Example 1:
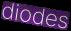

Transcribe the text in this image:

diodes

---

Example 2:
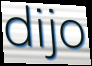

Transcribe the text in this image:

dijo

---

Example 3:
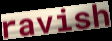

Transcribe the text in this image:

ravish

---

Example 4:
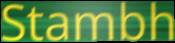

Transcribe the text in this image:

Stambh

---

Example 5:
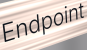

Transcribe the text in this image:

Endpoint